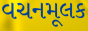
વચનમૂલક